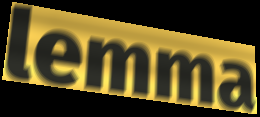
lemma